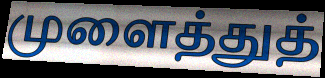
முளைத்துத்